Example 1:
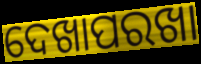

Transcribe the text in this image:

ଦେଖାପରଖା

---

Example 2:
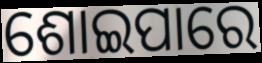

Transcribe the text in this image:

ଶୋଇପାରେ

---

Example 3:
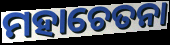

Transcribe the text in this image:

ମହାଚେତନା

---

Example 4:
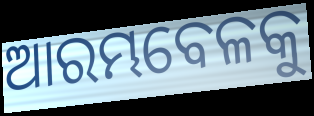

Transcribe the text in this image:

ଆରମ୍ଭବେଳକୁ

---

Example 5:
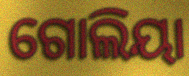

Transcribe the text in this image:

ଗୋଲିୟା